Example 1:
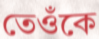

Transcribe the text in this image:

তেওঁকে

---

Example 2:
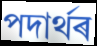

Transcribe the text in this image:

পদাৰ্থৰ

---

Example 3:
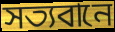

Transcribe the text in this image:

সত্যবানে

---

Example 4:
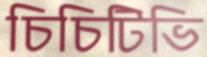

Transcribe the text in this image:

চিচিটিভি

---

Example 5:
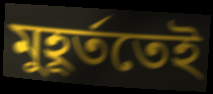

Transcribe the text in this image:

মুহূৰ্ততেই